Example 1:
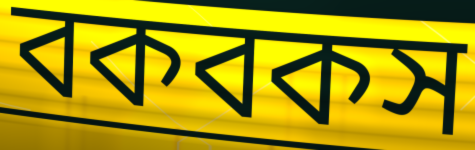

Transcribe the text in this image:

বকবকস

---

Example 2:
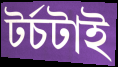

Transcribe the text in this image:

টর্চটাই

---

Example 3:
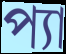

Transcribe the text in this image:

প্যা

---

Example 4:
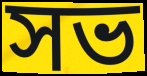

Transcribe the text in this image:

সভ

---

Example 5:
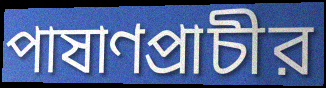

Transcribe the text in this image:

পাষাণপ্রাচীর